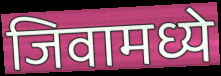
जिवामध्ये